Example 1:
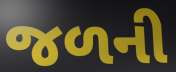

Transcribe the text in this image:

જળની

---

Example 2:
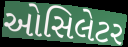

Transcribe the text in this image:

ઓસિલેટર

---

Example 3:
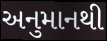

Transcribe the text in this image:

અનુમાનથી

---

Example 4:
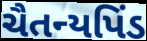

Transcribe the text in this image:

ચૈતન્યપિંડ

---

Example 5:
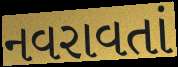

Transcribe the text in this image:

નવરાવતાં